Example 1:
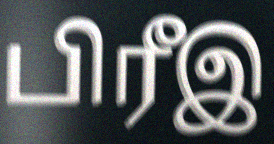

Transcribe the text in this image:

பிரீஇ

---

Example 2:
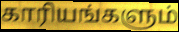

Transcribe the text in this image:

காரியங்களும்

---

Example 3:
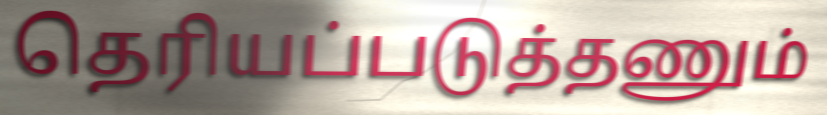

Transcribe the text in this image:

தெரியப்படுத்தணும்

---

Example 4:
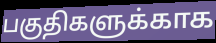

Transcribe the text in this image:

பகுதிகளுக்காக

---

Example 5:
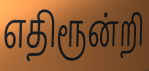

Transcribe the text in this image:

எதிரூன்றி